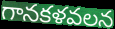
గానకళవలన